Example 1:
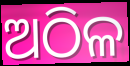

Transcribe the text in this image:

ଅଠିଳ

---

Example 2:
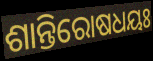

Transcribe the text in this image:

ଶାନ୍ତିରୋଷଧୟଃ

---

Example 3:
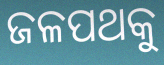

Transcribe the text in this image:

ଜଳପଥକୁ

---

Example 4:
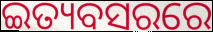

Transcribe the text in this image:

ଇତ୍ୟବସରରେ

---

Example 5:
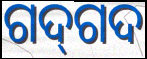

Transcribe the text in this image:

ଗଦ୍‍ଗଦ